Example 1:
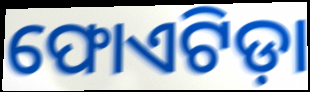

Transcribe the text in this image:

ଫୋଏଟିଡ଼ା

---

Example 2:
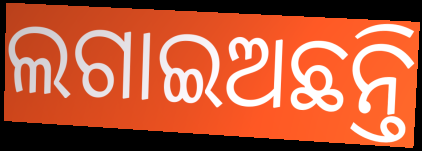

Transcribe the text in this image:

ଲଗାଇଅଛନ୍ତି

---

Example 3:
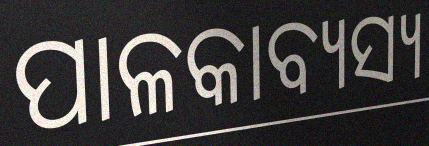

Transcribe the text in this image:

ପାଳକାବ୍ୟସ୍ୟ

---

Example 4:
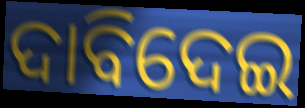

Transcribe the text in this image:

ଦାବିଦେଇ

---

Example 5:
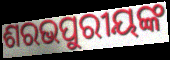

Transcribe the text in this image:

ଶରଭପୁରୀୟଙ୍କ